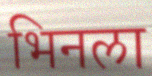
भिनला